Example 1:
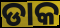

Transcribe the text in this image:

ଡାକ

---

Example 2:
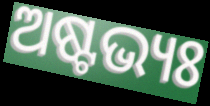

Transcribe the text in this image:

ଅଷ୍ଟଭ୍ୟଃ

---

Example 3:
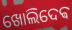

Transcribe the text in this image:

ଖୋଲିଦେଵ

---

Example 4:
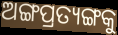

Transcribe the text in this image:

ଅଙ୍ଗପ୍ରତ୍ୟଙ୍ଗକୁ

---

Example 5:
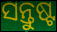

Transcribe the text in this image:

ସନ୍ତୁଷ୍ଟ